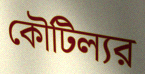
কৌটিল্যর